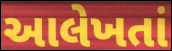
આલેખતાં